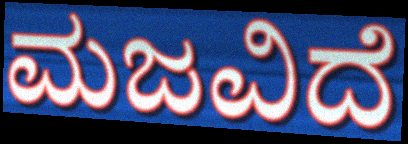
ಮಜವಿದೆ